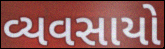
વ્યવસાયો